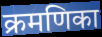
क्रमणिका